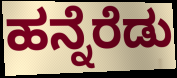
ಹನ್ನೆರೆಡು